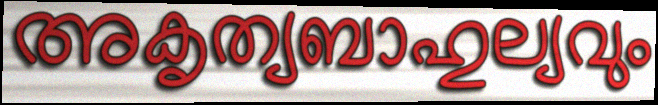
അകൃത്യബാഹുല്യവും